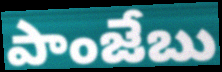
పాంజేబు